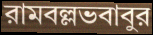
রামবল্লভবাবুর